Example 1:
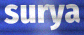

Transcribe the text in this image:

surya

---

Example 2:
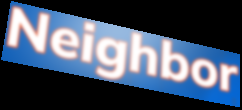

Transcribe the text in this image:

Neighbor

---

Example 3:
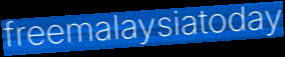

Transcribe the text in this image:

freemalaysiatoday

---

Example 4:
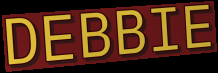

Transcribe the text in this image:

DEBBIE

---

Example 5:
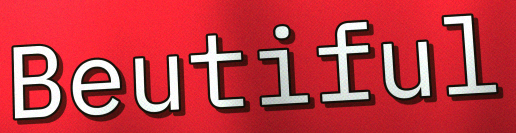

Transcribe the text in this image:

Beutiful